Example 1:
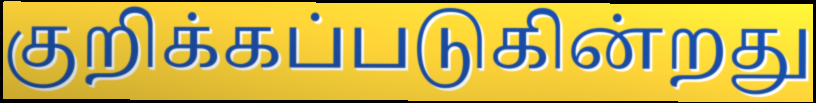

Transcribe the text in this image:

குறிக்கப்படுகின்றது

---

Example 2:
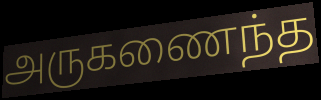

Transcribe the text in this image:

அருகணைந்த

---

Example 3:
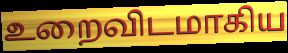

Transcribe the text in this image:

உறைவிடமாகிய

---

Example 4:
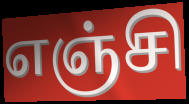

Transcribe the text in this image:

எஞ்சி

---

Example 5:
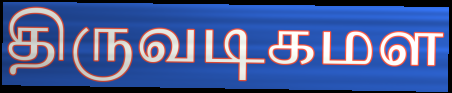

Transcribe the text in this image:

திருவடிகமள